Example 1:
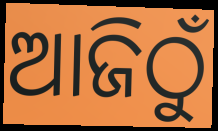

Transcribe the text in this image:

ଆଜିଠୁଁ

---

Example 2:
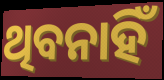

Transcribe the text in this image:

ଥିବନାହିଁ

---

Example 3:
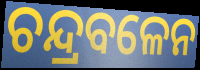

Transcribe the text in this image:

ଚନ୍ଦ୍ରବଳେନ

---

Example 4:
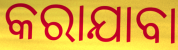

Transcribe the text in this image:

କରାଯାବା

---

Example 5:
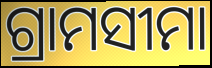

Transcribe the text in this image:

ଗ୍ରାମସୀମା